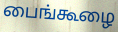
பைங்கூழை